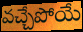
వచ్చేపోయే